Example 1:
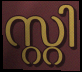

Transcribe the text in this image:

സ്റ്റി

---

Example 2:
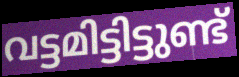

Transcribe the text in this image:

വട്ടമിട്ടിട്ടുണ്ട്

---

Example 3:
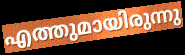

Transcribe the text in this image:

എത്തുമായിരുന്നു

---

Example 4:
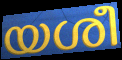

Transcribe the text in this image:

യശീ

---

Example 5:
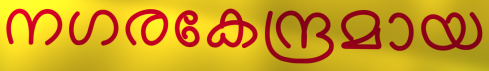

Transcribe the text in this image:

നഗരകേന്ദ്രമായ